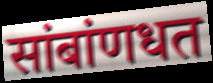
सांबांणधत